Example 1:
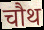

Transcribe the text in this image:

चौथ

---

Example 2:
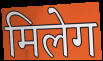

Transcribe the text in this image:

मिलेग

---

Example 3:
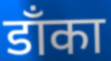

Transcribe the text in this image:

डाँका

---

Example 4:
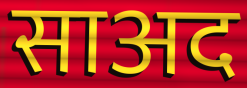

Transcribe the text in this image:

साअद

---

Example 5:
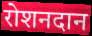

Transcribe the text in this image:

रोशनदान